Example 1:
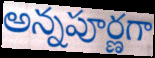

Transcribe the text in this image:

అన్నపూర్ణగా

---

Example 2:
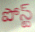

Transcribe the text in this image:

పోస్ట్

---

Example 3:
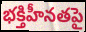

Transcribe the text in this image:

భక్తిహీనతపై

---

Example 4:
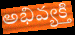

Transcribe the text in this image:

అభివ్యక్తి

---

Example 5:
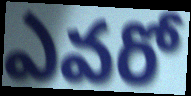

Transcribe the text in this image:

ఎవరో